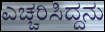
ಎಚ್ಚರಿಸಿದ್ದನು